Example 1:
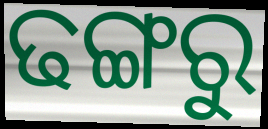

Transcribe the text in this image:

ଢଙ୍ଗରୁ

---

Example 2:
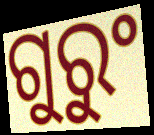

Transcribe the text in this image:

ଗୁରୁଂ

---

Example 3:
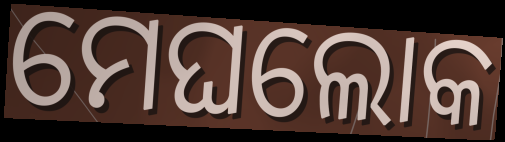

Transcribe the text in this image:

ମେଘଲୋକ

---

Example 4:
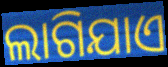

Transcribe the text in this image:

ଲାଗିଯାଏ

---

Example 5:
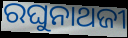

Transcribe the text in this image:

ରଘୁନାଥଜୀ